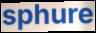
sphure